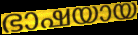
ഭാഷയായ